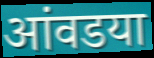
आंवडया